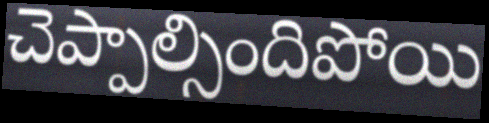
చెప్పాల్సిందిపోయి